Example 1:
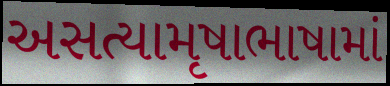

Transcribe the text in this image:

અસત્યામૃષાભાષામાં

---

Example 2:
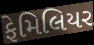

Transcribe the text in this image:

ફેમિલિયર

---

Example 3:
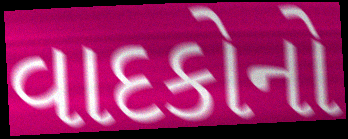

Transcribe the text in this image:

વાદકોનો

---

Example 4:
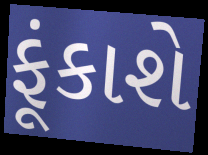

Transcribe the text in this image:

ફૂંકાશે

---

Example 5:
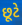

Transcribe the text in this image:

છૂટે